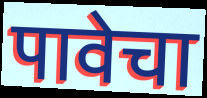
पावेचा